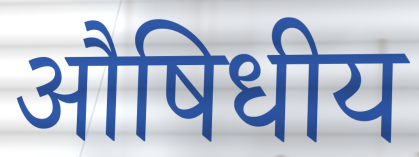
औषिधीय